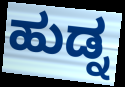
ಹುಡ್ನ